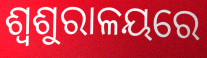
ଶ୍ୱଶୁରାଳୟରେ